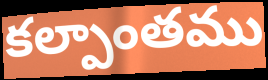
కల్పాంతము